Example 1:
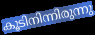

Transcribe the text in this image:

കൂടിനിന്നിരുന്നു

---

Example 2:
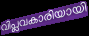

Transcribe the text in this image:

വിപ്ലവകാരിയായി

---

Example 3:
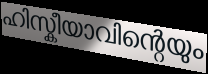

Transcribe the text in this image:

ഹിസ്കീയാവിന്റെയും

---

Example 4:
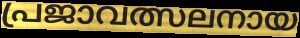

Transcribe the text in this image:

പ്രജാവത്സലനായ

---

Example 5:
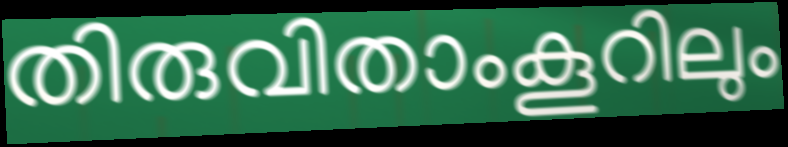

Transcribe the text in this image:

തിരുവിതാംകൂറിലും